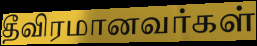
தீவிரமானவர்கள்